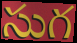
సుగ